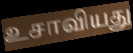
உசாவியது